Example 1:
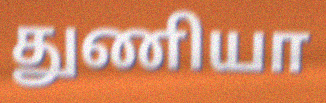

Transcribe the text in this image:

துணியா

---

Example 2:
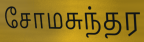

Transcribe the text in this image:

சோமசுந்தர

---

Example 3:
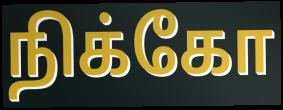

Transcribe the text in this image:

நிக்கோ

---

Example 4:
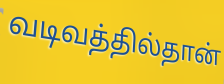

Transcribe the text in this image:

வடிவத்தில்தான்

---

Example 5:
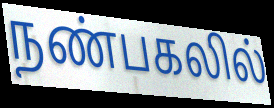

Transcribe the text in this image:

நண்பகலில்